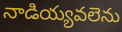
నాడియ్యవలెను